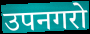
उपनगरो